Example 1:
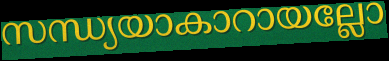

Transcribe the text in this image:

സന്ധ്യയാകാറായല്ലോ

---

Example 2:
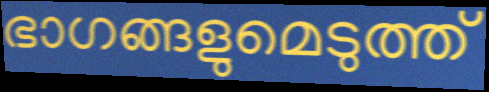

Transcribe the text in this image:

ഭാഗങ്ങളുമെടുത്ത്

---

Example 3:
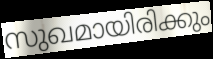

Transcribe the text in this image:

സുഖമായിരിക്കും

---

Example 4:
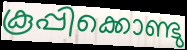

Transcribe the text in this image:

കൂപ്പിക്കൊണ്ടു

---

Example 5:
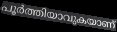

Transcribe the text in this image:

പൂർത്തിയാവുകയാണ്